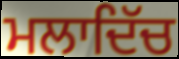
ਮਲਾਦਿੱਚ